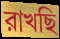
রাখছি